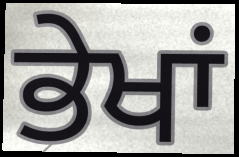
ਭੇਖਾਂ